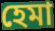
হেমা